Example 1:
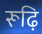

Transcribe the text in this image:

रूढ़ि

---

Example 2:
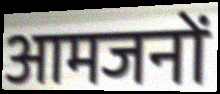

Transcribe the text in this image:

आमजनों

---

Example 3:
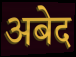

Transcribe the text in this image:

अबेद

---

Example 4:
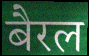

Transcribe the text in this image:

बैरल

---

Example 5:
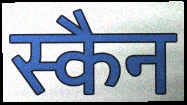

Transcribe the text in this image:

स्कैन